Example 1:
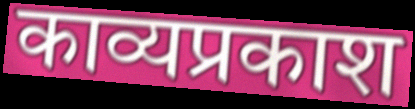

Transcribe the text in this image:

काव्यप्रकाश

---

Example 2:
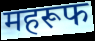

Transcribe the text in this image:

महरूफ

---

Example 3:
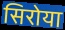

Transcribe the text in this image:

सिरोया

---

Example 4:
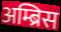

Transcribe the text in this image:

अम्ब्रिस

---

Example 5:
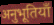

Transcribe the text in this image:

अनुभूतियाँ